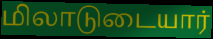
மிலாடுடையார்